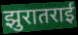
झुरातराई